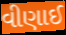
વીણાઈ